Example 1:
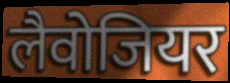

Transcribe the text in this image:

लैवोजियर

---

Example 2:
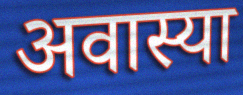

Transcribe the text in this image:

अवास्या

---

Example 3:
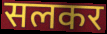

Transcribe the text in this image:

सलकर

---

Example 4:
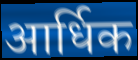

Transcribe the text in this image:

आर्धिक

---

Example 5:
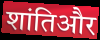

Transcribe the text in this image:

शांतिऔर